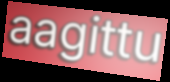
aagittu